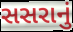
સસરાનું